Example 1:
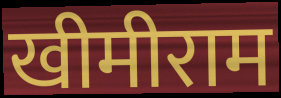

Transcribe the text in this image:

खीमीराम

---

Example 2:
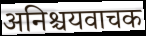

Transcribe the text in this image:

अनिश्चयवाचक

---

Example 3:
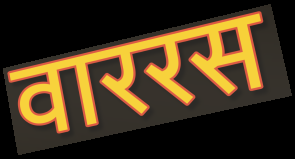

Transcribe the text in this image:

वाररस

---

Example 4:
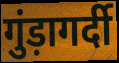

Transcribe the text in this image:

गुंड़ागर्दी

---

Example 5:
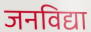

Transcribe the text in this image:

जनविद्या